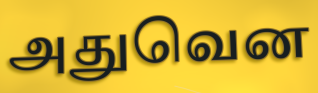
அதுவென